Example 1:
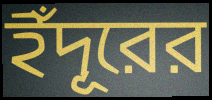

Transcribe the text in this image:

ইঁদূরের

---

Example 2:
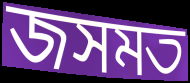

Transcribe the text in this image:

জসমত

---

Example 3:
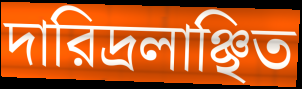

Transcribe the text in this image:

দারিদ্রলাঞ্ছিত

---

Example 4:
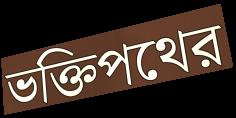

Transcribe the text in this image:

ভক্তিপথের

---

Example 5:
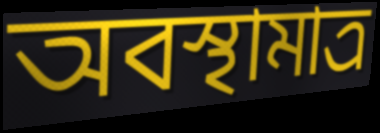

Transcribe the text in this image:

অবস্থামাত্র